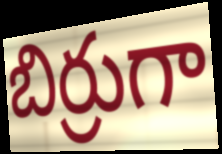
బిర్రుగా